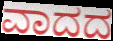
ವಾದದ